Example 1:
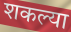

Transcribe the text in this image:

शकल्या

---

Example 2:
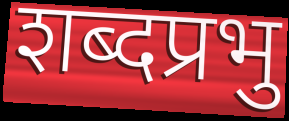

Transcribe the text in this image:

शब्दप्रभु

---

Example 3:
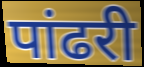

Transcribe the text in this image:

पांढरी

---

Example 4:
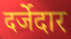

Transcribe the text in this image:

दर्जेदार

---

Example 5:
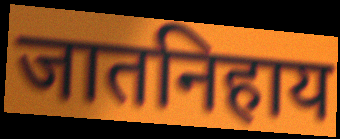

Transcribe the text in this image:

जातनिहाय